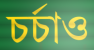
চৰ্চাও